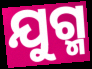
ଯୁଗ୍ମ